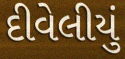
દીવેલીયું